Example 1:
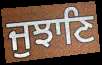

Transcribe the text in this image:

ਜੁਝਾਣਿ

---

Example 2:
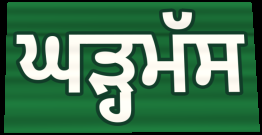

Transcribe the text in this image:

ਘੜ੍ਹਮੱਸ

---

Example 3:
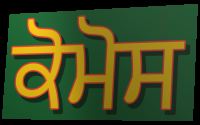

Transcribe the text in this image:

ਕੋਮੋਸ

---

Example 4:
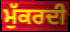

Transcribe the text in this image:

ਮੁੱਕਰਦੀ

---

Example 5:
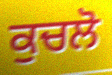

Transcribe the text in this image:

ਕੁਚਲੋ